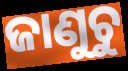
ଜାଣୁଚୁ